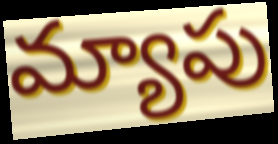
మ్యాపు